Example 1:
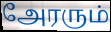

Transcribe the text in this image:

அேரரும்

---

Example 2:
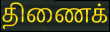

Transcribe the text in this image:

திணைக்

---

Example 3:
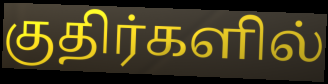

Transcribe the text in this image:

குதிர்களில்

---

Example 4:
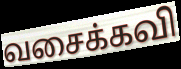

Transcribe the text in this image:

வசைக்கவி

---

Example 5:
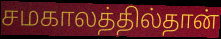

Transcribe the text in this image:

சமகாலத்தில்தான்